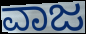
ವಾಜ